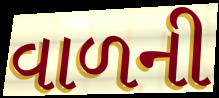
વાળની